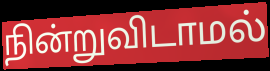
நின்றுவிடாமல்